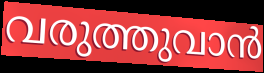
വരുത്തുവാൻ